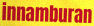
innamburan